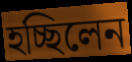
হচ্ছিলেন